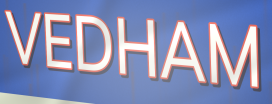
VEDHAM